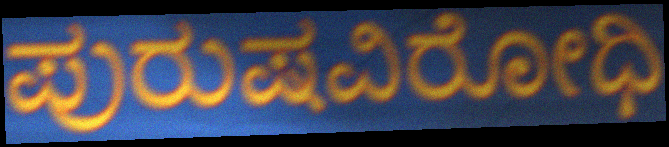
ಪುರುಷವಿರೋಧಿ